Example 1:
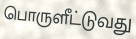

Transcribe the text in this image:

பொருளீட்டுவது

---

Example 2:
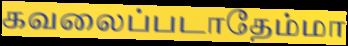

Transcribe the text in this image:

கவலைப்படாதேம்மா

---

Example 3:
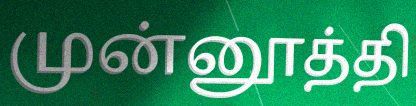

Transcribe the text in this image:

முன்னூத்தி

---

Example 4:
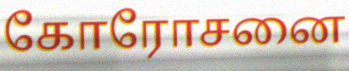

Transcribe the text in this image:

கோரோசனை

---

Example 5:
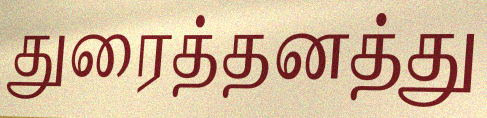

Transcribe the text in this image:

துரைத்தனத்து